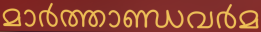
മാർത്താണ്ഡവർമ